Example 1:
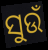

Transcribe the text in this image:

ସୁଉଁ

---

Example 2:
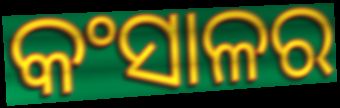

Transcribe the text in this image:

କଂସାଳର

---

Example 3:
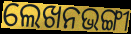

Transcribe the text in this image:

ଲେଖନଭଙ୍ଗୀ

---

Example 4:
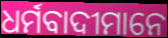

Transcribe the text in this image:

ଧର୍ମବାଦୀମାନେ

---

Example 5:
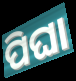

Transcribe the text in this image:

ପିଘା